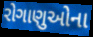
રોગાણુઓના